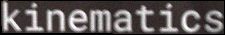
kinematics